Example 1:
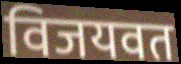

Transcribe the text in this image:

विजयवत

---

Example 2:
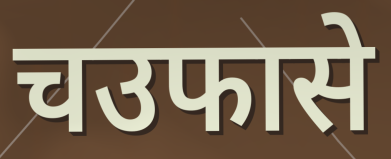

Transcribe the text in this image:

चउफासे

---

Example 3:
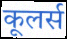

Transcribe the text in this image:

कूलर्स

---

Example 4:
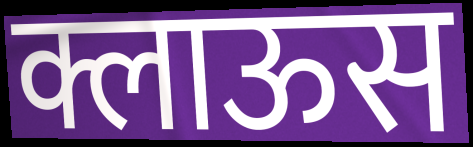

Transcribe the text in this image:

क्लाऊस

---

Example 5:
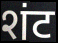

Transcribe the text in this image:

शंट